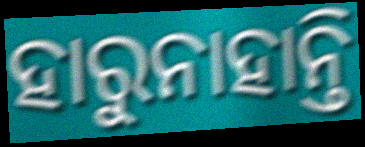
ହାରୁନାହାନ୍ତି